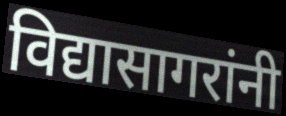
विद्यासागरांनी